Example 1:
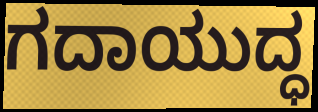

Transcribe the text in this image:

ಗದಾಯುದ್ಧ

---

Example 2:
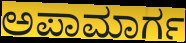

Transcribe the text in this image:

ಅಪಾಮಾರ್ಗ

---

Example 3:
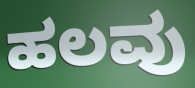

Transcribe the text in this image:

ಹಲವು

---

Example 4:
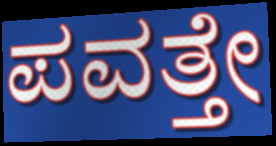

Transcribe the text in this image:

ಪವತ್ತೇ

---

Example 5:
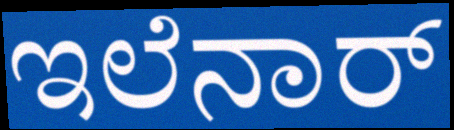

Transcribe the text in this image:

ಇಲೆನಾರ್